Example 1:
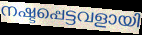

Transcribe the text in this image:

നഷ്ടപ്പെട്ടവളായി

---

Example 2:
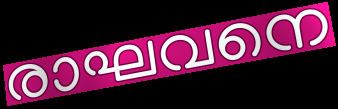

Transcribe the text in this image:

രാഘവനെ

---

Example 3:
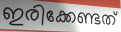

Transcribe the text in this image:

ഇരിക്കേണ്ടത്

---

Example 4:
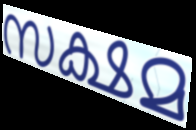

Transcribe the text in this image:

സക്ഷമ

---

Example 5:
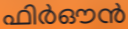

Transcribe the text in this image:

ഫിർഔൻ